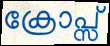
ക്രോപ്സ്